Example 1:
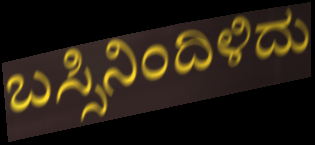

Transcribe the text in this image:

ಬಸ್ಸಿನಿಂದಿಳಿದು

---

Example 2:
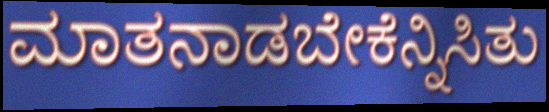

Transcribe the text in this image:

ಮಾತನಾಡಬೇಕೆನ್ನಿಸಿತು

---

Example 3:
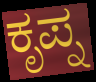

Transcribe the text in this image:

ಕೃಪ್ನ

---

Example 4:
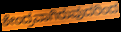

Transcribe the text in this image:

ಕೇಂದ್ರವಾಗಿರುವುದರಿಂದ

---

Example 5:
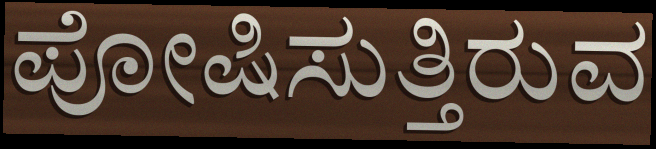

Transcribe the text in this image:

ಪೋಷಿಸುತ್ತಿರುವ